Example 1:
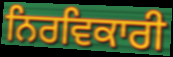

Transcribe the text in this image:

ਨਿਰਵਿਕਾਰੀ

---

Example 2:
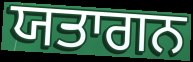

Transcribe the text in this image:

ਯਤਾਗਨ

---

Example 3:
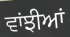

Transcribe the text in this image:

ਵਾਂਝੀਆਂ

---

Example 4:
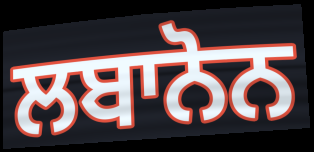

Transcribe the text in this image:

ਲਬਾਨੋਨ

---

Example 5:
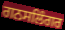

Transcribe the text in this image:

ਗਨਸਲਿੰਗਰ